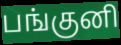
பங்குனி